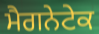
ਮੈਗਨੇਟੇਕ